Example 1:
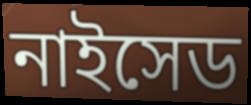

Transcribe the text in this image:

নাইসেড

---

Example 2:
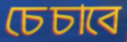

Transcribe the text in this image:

চেচাবে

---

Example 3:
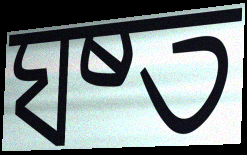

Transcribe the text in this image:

ঘষ্ত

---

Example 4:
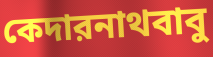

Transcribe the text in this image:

কেদারনাথবাবু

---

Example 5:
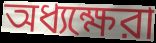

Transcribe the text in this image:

অধ্যক্ষেরা